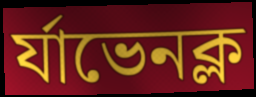
র্যাভেনক্ল